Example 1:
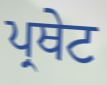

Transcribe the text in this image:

ਪ੍ਰਥੇਟ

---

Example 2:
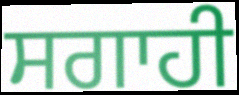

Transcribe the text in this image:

ਸਗਾਹੀ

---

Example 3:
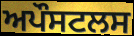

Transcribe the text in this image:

ਅਪੌਸਟਲਸ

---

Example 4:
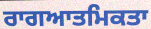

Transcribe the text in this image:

ਰਾਗਆਤਮਿਕਤਾ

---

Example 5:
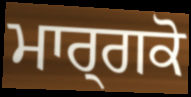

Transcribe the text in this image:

ਮਾਰ੍ਗਕੋ